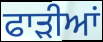
ਫਾੜੀਆਂ